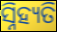
ସ୍ନିହ୍ୟତି